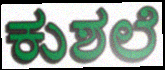
ಕುಶಲೆ